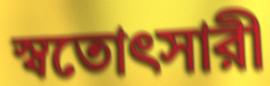
স্বতোৎসারী